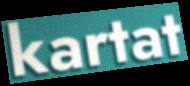
kartat